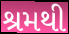
શ્રમથી